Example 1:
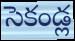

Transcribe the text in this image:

సెకండ్ల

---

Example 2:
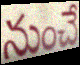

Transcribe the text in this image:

నుంచే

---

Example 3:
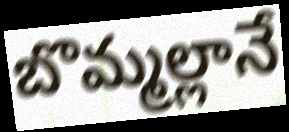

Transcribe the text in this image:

బొమ్మల్లానే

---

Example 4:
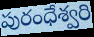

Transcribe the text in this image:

పురంధేశ్వరి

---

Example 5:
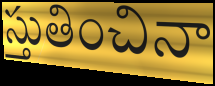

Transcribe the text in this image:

స్తుతించినా